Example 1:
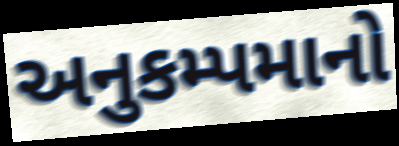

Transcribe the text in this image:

અનુકમ્પમાનો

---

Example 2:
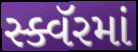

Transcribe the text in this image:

સ્ક્વૅરમાં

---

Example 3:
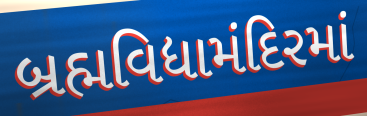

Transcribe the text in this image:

બ્રહ્મવિદ્યામંદિરમાં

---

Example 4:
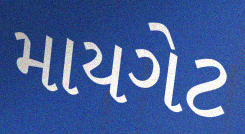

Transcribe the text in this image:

માયગેટ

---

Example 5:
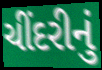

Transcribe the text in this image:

ચીંદરીનું